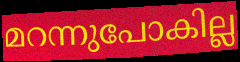
മറന്നുപോകില്ല